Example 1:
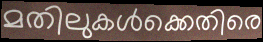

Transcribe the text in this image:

മതിലുകൾക്കെതിരെ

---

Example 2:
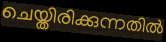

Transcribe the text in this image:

ചെയ്തിരിക്കുന്നതിൽ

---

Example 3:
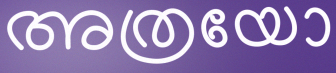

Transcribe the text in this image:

അത്രയോ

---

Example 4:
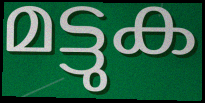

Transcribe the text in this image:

മട്ടുക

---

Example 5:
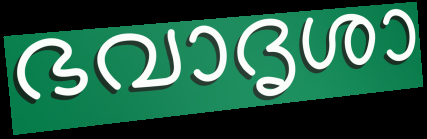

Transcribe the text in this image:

ഭവാദൃശാ